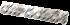
యూదయదేశ